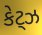
કેટ્ઝ